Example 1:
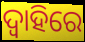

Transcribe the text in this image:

ଦ୍ୱାହିରେ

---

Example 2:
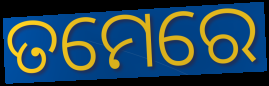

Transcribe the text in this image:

ତମେରେ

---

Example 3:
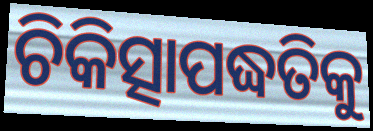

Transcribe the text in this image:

ଚିକିତ୍ସାପଦ୍ଧତିକୁ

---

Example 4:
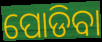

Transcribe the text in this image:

ପୋଡିବା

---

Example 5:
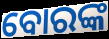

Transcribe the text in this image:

ବୋରଙ୍କ